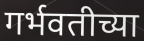
गर्भवतीच्या